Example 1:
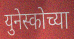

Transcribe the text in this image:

युनेस्कोच्या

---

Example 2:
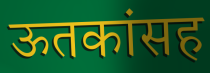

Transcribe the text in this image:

ऊतकांसह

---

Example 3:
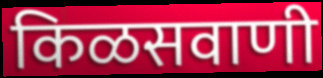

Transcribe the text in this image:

किळसवाणी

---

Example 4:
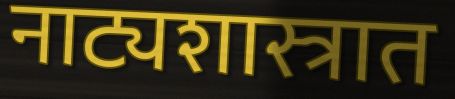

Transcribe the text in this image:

नाट्यशास्त्रात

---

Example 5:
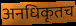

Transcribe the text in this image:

अनधिकृतच